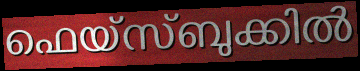
ഫെയ്സ്ബുക്കിൽ